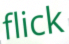
flick